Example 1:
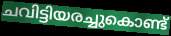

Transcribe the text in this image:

ചവിട്ടിയരച്ചുകൊണ്ട്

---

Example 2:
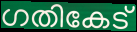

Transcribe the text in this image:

ഗതികേട്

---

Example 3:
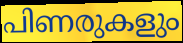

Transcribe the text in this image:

പിണരുകളും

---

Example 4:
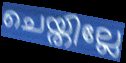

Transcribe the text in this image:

ചെയ്തില്ലേ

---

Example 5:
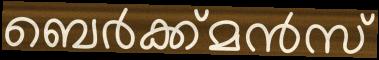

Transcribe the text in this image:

ബെർക്ക്മൻസ്